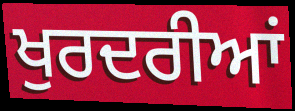
ਖੁਰਦਰੀਆਂ